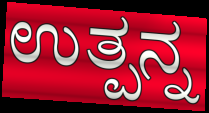
ಉತ್ಪನ್ನ